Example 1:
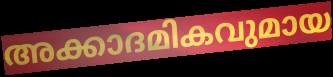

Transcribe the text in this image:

അക്കാദമികവുമായ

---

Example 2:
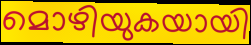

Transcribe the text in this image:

മൊഴിയുകയായി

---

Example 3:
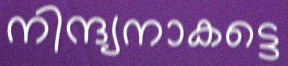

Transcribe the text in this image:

നിന്ദ്യനാകട്ടെ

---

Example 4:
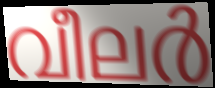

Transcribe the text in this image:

വീലർ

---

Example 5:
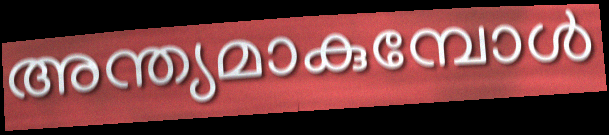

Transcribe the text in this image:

അന്ത്യമാകുമ്പോൾ